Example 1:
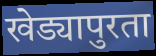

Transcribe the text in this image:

खेड्यापुरता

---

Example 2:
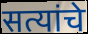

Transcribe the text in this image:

सत्यांचे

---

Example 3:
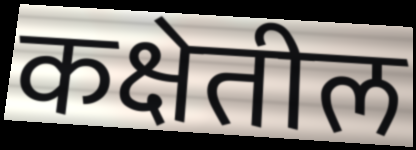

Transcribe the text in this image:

कक्षेतील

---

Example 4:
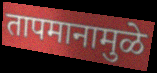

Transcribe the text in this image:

तापमानामुळे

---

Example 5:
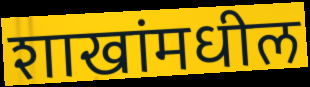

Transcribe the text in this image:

शाखांमधील